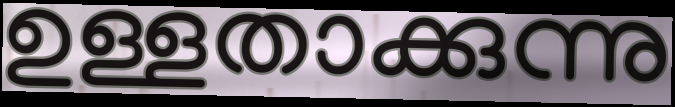
ഉള്ളതാക്കുന്നു